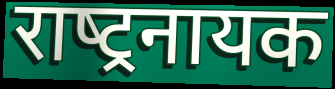
राष्ट्रनायक